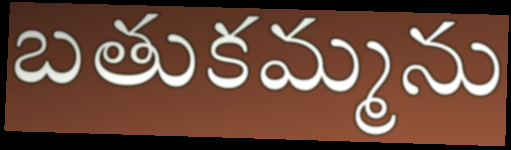
బతుకమ్మను